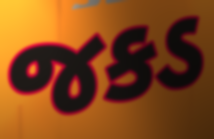
જકડ